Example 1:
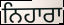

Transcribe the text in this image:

ਨਿਹਾਰਾ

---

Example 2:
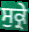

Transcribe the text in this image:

ਸੁਕ੍ਰੇ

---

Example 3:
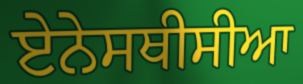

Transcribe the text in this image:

ਏਨੇਸਥੀਸੀਆ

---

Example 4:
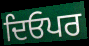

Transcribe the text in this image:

ਦਿਓਪਰ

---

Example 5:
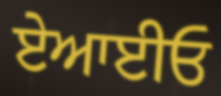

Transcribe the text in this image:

ਏਆਈਓ